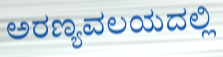
ಅರಣ್ಯವಲಯದಲ್ಲಿ